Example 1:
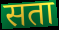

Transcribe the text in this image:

सता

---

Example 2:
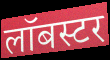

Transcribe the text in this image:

लॉबस्टर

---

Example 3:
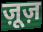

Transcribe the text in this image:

ज़ूज़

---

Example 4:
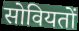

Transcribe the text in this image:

सोवियतों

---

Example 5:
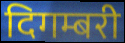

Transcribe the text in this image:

दिगम्बरी